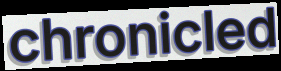
chronicled